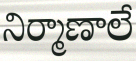
నిర్మాణాలే